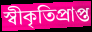
স্বীকৃতিপ্ৰাপ্ত